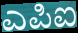
ಎಪಿಐ